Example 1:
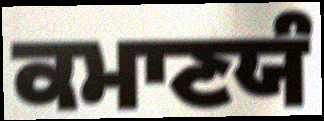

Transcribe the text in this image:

ਕਮਾਣਯੰ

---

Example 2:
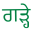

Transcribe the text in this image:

ਗੜ੍ਹੇ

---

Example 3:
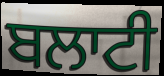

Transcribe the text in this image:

ਬਲਾਟੀ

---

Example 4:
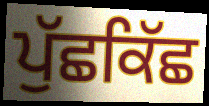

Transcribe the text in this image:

ਪੁੱਛਕਿੱਛ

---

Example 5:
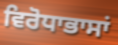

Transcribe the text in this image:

ਵਿਰੋਧਾਭਾਸਾਂ